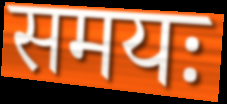
समयः